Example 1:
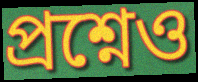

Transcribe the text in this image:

প্রশ্নেও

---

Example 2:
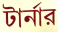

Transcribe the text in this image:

টার্নার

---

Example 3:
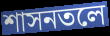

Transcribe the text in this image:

শাসনতলে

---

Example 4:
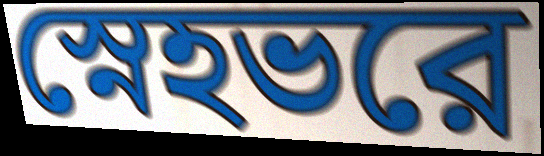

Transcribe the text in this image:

স্নেহভরে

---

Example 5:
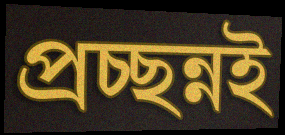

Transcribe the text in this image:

প্রচ্ছন্নই